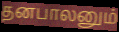
தனபாலனும்